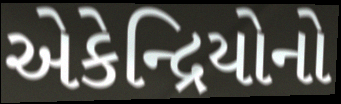
એકેન્દ્રિયોનો